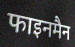
फाइनमैन